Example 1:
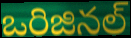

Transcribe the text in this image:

ఒరిజినల్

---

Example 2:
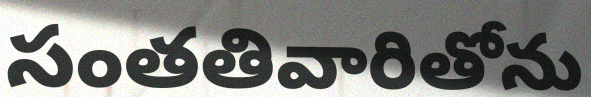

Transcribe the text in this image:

సంతతివారితోను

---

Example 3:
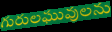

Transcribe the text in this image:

గురులఘువులను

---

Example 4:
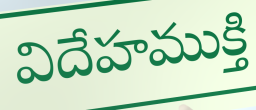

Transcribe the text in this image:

విదేహముక్తి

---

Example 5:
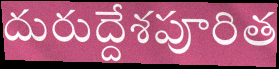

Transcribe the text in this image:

దురుద్దేశపూరిత